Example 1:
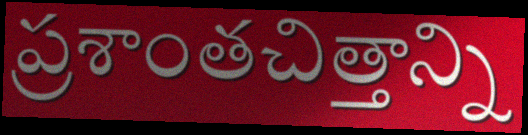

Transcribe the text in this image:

ప్రశాంతచిత్తాన్ని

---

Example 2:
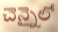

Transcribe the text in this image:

చెన్నైలో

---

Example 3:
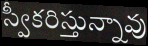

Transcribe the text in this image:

స్వీకరిస్తున్నావు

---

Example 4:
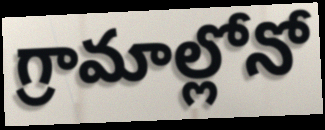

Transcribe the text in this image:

గ్రామాల్లోనో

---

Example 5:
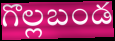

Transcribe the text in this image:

గొల్లబండ